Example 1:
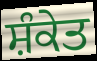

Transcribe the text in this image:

ਸ਼ੰਕੇਤ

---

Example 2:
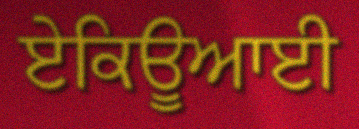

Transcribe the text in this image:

ਏਕਿਊਆਈ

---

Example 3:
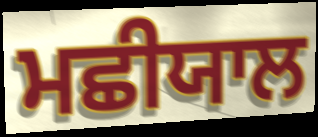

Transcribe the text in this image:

ਮਛੀਯਾਲ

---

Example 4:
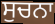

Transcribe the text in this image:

ਸੁਚਨਾ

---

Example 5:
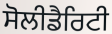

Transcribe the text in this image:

ਸੋਲੀਡੈਰਿਟੀ